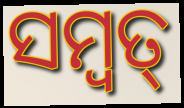
ସମ୍ବତ୍